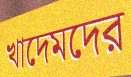
খাদেমদের